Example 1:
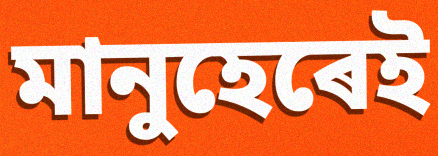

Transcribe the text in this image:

মানুহেৰেই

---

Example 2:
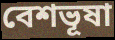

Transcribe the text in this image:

বেশভূষা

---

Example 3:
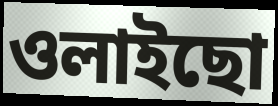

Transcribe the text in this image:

ওলাইছো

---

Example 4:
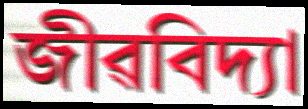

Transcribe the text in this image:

জীৱবিদ্যা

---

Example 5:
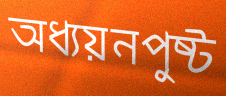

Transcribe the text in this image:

অধ্যয়নপুষ্ট